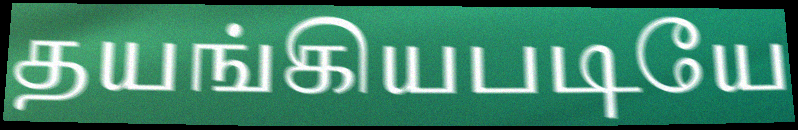
தயங்கியபடியே